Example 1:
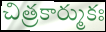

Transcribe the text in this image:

చిత్రకార్ముకః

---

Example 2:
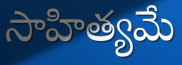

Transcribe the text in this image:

సాహిత్యమే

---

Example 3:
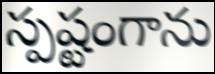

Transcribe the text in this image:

స్పష్టంగాను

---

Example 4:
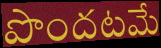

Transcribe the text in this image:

పొందటమే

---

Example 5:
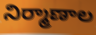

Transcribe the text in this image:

నిర్మాణాల